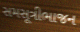
સમસૂત્રીભાજન